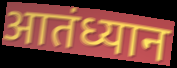
आतंध्यान